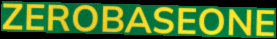
ZEROBASEONE